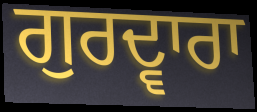
ਗੁਰਦ੍ਵਾਰਾ